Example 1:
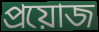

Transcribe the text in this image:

প্ৰয়োজ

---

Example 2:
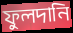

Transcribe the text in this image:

ফুলদানি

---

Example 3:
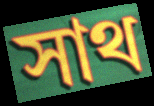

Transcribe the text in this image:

সাথ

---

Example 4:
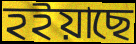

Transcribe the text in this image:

হইয়াছে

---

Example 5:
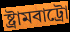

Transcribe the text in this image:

ষ্ট্ৰামবাট্ৰো